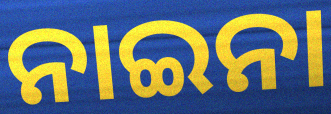
ନାଇନା